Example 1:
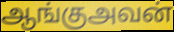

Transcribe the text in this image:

ஆங்குஅவன்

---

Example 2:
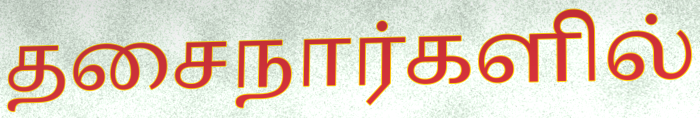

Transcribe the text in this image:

தசைநார்களில்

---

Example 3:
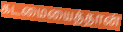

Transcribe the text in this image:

கடமையைத்தான்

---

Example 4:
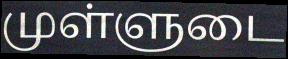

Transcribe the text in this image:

முள்ளுடை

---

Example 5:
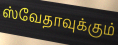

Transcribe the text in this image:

ஸ்வேதாவுக்கும்